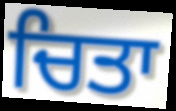
ਚਿਤਾ